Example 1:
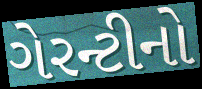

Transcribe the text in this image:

ગેરન્ટીનો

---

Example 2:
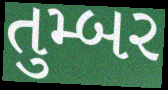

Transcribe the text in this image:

તુમ્બર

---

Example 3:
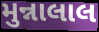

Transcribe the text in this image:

મુન્નાલાલ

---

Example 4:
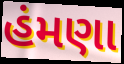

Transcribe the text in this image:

હંમણા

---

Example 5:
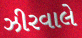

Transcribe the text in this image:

ઝીરવાલે